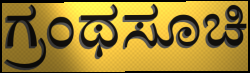
ಗ್ರಂಥಸೂಚಿ